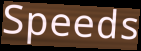
Speeds